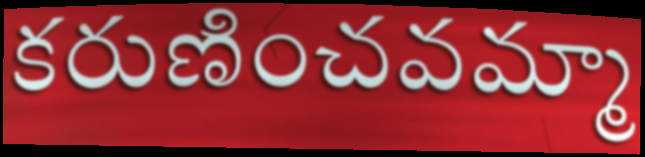
కరుణించవమ్మా